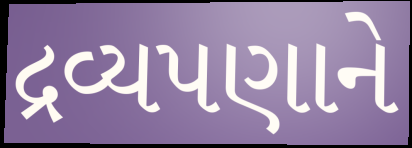
દ્રવ્યપણાને